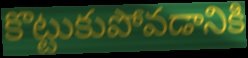
కొట్టుకుపోవడానికి